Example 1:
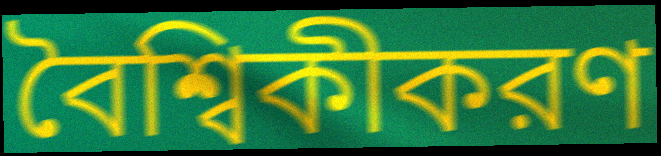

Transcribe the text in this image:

বৈশ্বিকীকরণ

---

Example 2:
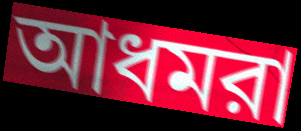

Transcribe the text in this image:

আধমরা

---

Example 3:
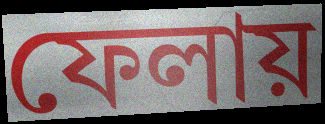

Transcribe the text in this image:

ফেলায়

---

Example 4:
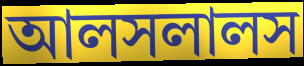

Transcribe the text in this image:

আলসলালস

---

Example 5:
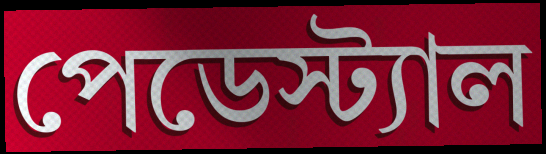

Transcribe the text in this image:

পেডেস্ট্যাল